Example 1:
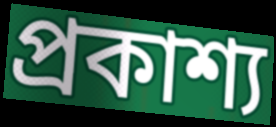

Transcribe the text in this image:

প্রকাশ্য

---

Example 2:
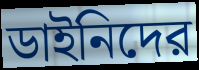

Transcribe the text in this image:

ডাইনিদের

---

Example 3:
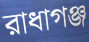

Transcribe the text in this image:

রাধাগঞ্জ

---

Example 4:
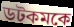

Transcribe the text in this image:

ডটকমকে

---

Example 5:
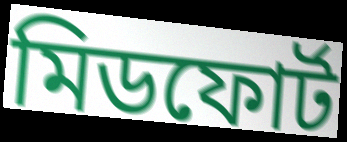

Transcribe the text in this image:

মিডফোর্ট